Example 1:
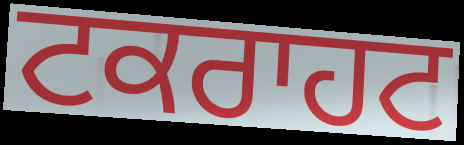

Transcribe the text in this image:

ਟਕਰਾਹਟ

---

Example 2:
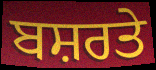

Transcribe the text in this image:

ਬਸ਼ਰਤੇ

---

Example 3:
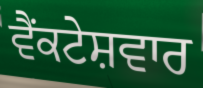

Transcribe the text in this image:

ਵੈਂਕਟੇਸ਼ਵਾਰ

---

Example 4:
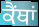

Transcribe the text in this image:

ਕੈਂਥਾਂ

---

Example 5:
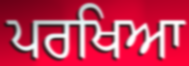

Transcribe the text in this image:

ਪਰਖਿਆ